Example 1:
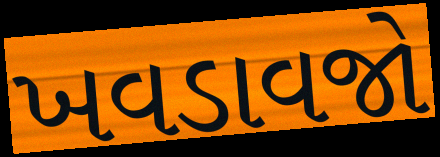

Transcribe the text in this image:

ખવડાવજો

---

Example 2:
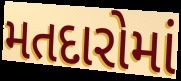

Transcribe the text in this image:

મતદારોમાં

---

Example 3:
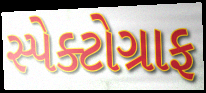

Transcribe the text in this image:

સ્પેક્ટોગ્રાફ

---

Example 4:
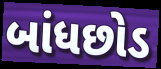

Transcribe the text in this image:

બાંધછોડ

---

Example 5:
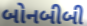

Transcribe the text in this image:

બોનબીબી